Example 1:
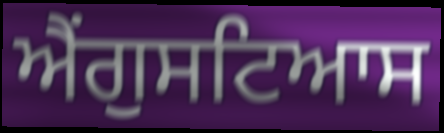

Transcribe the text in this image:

ਐਂਗੁਸਟਿਆਸ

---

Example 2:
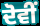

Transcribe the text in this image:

ਦੋਵੀਂ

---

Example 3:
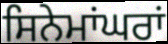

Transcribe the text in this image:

ਸਿਨੇਮਾਂਘਰਾਂ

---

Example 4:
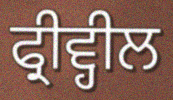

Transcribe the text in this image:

ਫ੍ਰੀਵ੍ਹੀਲ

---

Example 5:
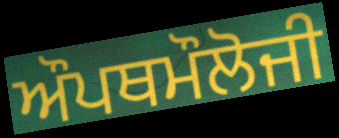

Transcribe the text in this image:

ਔਪਥਮੌਲੋਜੀ